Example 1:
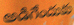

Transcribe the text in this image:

అడిగేందుకు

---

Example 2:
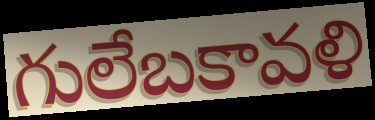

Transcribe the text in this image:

గులేబకావళి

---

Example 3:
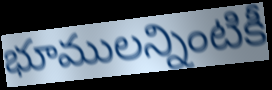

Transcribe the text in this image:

భూములన్నింటికీ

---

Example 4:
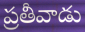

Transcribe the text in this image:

ప్రతీవాడు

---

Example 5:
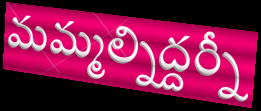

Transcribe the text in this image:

మమ్మల్నిద్దర్నీ